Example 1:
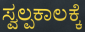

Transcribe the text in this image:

ಸ್ವಲ್ಪಕಾಲಕ್ಕೆ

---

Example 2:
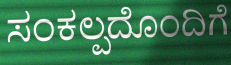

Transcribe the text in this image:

ಸಂಕಲ್ಪದೊಂದಿಗೆ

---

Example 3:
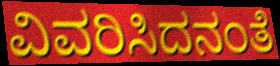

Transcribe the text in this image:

ವಿವರಿಸಿದನಂತೆ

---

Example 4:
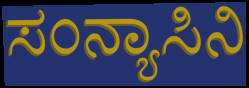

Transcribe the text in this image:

ಸಂನ್ಯಾಸಿನಿ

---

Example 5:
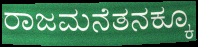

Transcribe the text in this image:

ರಾಜಮನೆತನಕ್ಕೂ